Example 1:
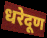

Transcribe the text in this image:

धरेदूण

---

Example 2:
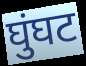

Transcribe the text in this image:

घुंघट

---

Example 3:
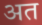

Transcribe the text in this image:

अत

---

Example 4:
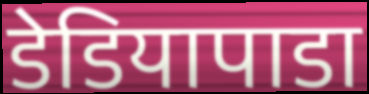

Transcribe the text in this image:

डेडियापाडा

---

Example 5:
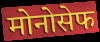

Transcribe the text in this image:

मोनोसेफ